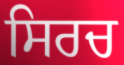
ਸਿਰਚ